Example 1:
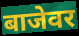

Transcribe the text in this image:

बाजेवर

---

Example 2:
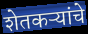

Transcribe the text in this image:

शेतकऱ्यांचे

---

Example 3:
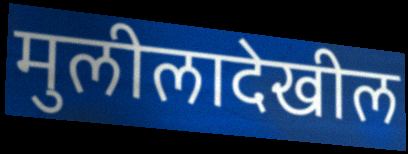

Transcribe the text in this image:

मुलीलादेखील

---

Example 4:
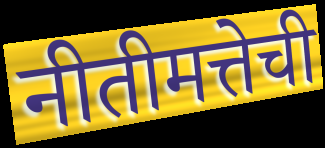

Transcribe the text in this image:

नीतीमत्तेची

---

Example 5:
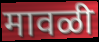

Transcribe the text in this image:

मावळी